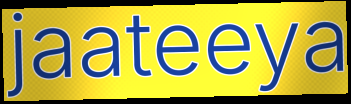
jaateeya